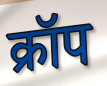
क्रॉप